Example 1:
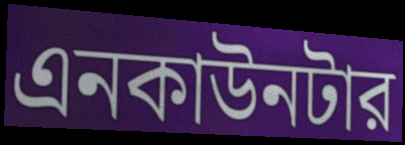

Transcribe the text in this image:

এনকাউনটার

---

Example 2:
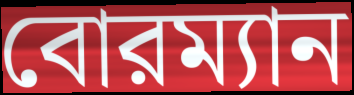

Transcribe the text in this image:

বোরম্যান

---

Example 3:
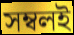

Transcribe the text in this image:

সম্বলই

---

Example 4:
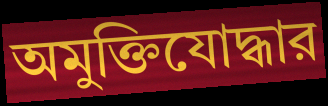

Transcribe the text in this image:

অমুক্তিযোদ্ধার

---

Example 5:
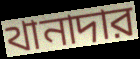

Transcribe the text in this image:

থানাদার